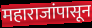
महाराजांपासून